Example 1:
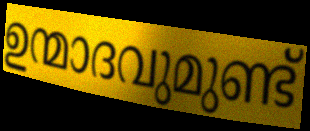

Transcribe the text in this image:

ഉന്മാദവുമുണ്ട്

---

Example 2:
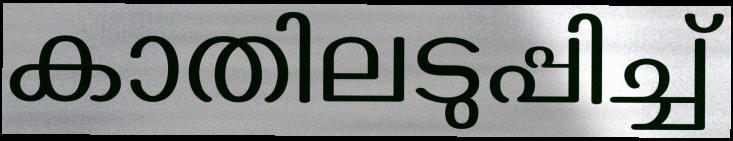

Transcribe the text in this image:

കാതിലടുപ്പിച്ച്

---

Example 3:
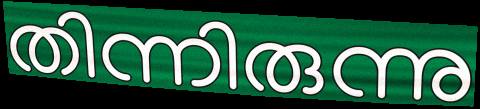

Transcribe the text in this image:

തിന്നിരുന്നു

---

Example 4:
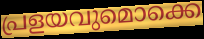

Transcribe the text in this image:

പ്രളയവുമൊക്കെ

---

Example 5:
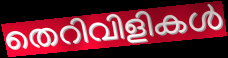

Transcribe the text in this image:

തെറിവിളികൾ